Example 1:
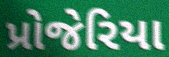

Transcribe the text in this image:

પ્રોજેરિયા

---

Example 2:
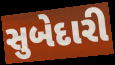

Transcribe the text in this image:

સુબેદારી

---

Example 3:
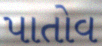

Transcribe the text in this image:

પાતોવ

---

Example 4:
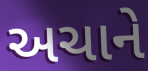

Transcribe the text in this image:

અચાને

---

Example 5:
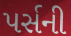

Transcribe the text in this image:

પર્સની